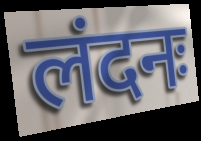
लंदनः